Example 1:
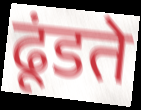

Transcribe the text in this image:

ढूंडते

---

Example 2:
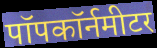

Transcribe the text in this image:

पॉपकॉर्नमीटर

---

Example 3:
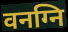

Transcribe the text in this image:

वनग्नि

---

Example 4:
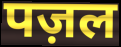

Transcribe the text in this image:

पज़ल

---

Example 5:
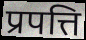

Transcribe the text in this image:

प्रपत्ति